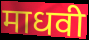
माधवी